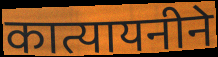
कात्यायनीने